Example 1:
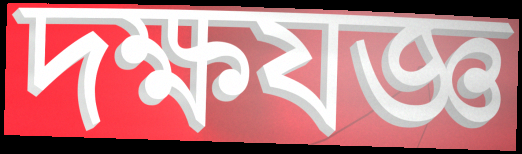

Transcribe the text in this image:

দক্ষযজ্ঞ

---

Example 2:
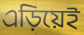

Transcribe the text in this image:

এড়িয়েই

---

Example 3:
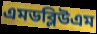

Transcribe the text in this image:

এমডব্লিউএম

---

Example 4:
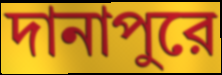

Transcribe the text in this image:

দানাপুরে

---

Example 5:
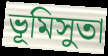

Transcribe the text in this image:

ভূমিসুতা